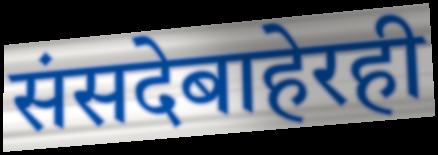
संसदेबाहेरही